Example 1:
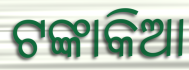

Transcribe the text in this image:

ଟଙ୍କାକିଆ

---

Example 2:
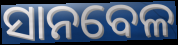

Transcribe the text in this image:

ସାନବେଳ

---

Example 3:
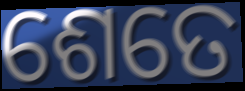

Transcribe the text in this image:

ଶେତେ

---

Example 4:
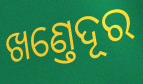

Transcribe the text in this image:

ଖଣ୍ତେଦୂର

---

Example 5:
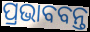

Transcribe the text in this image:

ପ୍ରଭାବବନ୍ତ